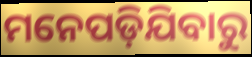
ମନେପଡ଼ିଯିବାରୁ